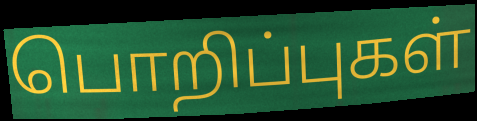
பொறிப்புகள்